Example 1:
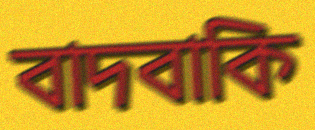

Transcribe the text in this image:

বাদবাকি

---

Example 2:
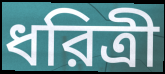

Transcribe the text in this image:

ধরিত্রী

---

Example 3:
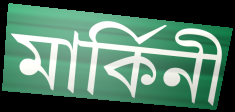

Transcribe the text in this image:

মার্কিনী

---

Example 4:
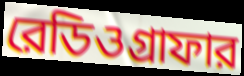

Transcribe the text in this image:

রেডিওগ্রাফার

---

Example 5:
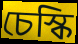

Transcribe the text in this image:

চেস্কি